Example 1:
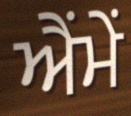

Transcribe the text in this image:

ਐਂਮੇਂ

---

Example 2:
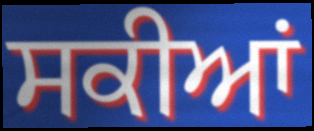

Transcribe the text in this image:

ਸਕੀਆਂ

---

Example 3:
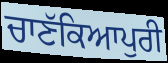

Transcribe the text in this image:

ਚਾਣੱਕਿਆਪੁਰੀ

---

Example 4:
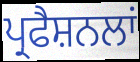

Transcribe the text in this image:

ਪ੍ਰਫੈਸ਼ਨਲਾਂ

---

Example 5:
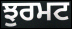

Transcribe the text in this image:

ਝੁਰਮਟ